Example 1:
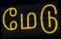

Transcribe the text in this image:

மேடு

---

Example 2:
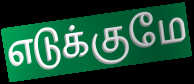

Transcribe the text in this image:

எடுக்குமே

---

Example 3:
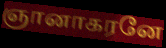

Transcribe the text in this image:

ஞானாகரனே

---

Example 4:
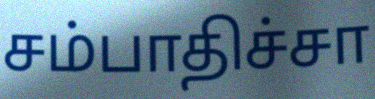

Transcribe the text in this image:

சம்பாதிச்சா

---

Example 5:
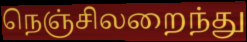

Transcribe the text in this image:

நெஞ்சிலறைந்து